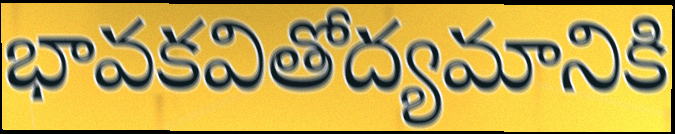
భావకవితోద్యమానికి